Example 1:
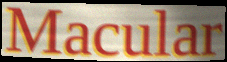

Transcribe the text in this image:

Macular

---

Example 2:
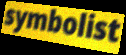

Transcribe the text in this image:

symbolist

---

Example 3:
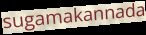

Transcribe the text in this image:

sugamakannada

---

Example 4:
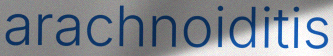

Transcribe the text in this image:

arachnoiditis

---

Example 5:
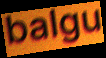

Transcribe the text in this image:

balgu